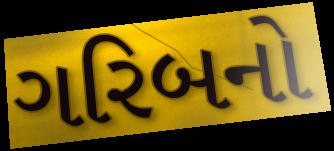
ગરિબનો